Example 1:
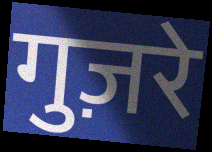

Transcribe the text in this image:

गुज़रे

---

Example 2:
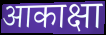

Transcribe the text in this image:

आकाक्षा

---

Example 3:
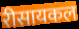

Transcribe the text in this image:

रीसायकल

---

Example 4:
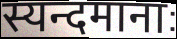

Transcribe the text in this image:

स्यन्दमानाः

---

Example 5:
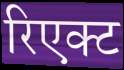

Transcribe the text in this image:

रिएक्ट